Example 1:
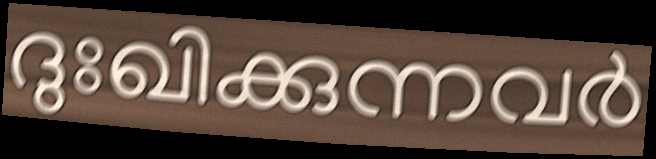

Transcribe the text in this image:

ദുഃഖിക്കുന്നവർ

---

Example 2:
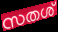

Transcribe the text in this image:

സതശ്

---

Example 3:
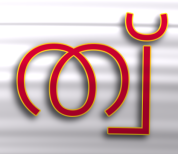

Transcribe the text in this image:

ത്വ്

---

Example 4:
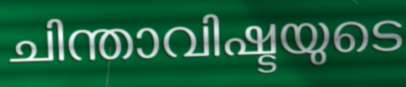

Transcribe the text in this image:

ചിന്താവിഷ്ടയുടെ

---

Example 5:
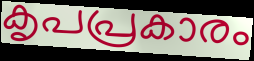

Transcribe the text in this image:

കൃപപ്രകാരം